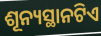
ଶୂନ୍ୟସ୍ଥାନଟିଏ